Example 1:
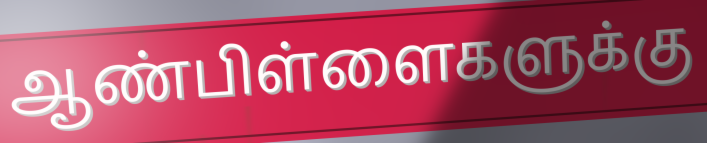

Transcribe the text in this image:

ஆண்பிள்ளைகளுக்கு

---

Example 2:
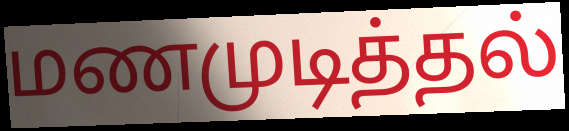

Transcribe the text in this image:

மணமுடித்தல்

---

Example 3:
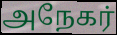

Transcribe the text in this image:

அநேகர்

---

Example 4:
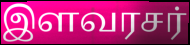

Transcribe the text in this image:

இளவரசர்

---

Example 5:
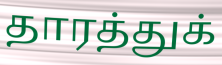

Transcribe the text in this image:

தாரத்துக்